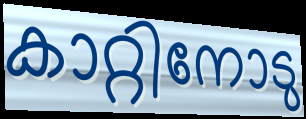
കാറ്റിനോടു